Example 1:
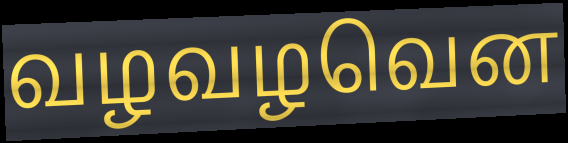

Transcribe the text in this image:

வழவழவென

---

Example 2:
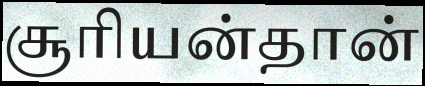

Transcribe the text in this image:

சூரியன்தான்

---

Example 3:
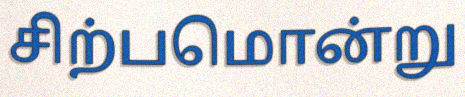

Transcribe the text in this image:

சிற்பமொன்று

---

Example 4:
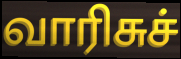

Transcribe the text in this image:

வாரிசுச்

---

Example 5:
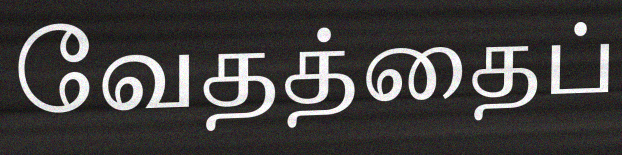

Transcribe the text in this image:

வேதத்தைப்